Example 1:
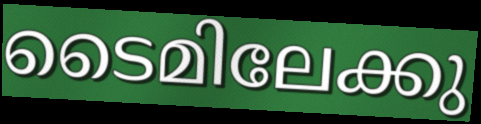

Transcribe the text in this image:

ടൈമിലേക്കു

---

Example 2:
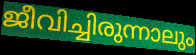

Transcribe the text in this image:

ജീവിച്ചിരുന്നാലും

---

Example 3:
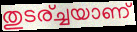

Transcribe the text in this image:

തുടര്ച്ചയാണ്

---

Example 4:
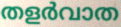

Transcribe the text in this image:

തളർവാത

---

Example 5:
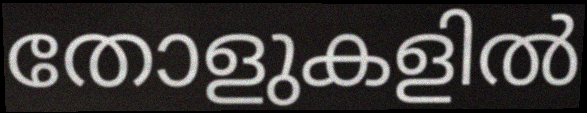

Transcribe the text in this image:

തോളുകളിൽ